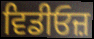
ਵਿਡੀਓਜ਼